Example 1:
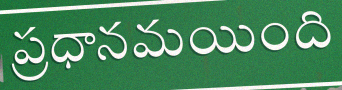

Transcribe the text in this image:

ప్రధానమయింది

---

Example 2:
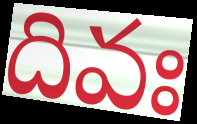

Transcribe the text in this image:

దివః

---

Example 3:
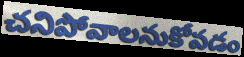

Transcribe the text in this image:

చనిపోవాలనుకోవడం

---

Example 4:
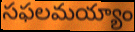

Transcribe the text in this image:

సఫలమయ్యాం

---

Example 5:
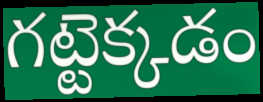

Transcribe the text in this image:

గట్టెక్కడం